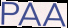
PAA